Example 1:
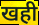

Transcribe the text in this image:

खही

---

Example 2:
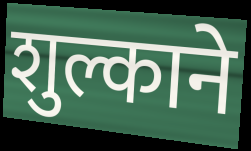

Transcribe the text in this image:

शुल्काने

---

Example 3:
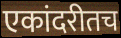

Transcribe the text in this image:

एकांदरीतच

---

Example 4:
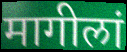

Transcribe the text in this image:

मागीलां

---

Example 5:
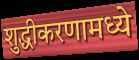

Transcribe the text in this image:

शुद्धीकरणामध्ये